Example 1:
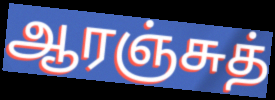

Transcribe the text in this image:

ஆரஞ்சுத்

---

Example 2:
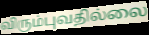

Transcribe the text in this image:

விரும்புவதில்லை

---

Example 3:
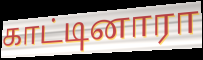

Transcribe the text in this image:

காட்டினாரா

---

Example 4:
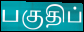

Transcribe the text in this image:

பகுதிப்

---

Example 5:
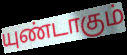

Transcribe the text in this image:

யுண்டாகும்